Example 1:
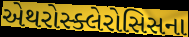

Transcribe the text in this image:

એથરોસ્ક્લેરોસિસના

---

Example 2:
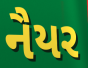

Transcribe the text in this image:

નૈયર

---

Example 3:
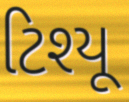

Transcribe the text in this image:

ટિશ્યૂ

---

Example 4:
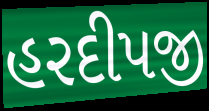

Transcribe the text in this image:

હરદીપજી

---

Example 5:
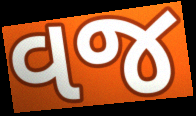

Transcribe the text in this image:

વજ